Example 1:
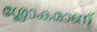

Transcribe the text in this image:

ശ്ലോകമാണ്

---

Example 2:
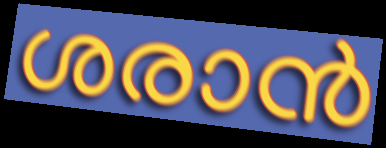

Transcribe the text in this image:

ശരാൻ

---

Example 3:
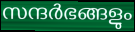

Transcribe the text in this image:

സന്ദർഭങ്ങളും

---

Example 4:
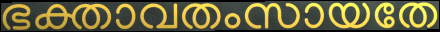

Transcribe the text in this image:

ഭക്താവതംസായതേ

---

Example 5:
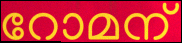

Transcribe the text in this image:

റോമന്